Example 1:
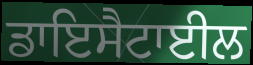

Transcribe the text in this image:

ਡਾਇਸੈਟਾਈਲ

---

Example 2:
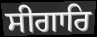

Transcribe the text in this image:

ਸੀਗਾਰਿ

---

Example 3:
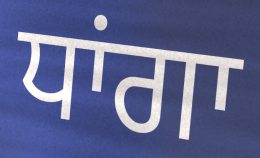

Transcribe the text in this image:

ਧਾਂਗਾ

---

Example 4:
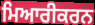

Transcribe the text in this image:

ਮਿਆਰੀਕਰਨ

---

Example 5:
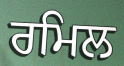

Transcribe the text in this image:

ਰਮਿਲ